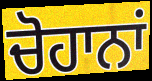
ਚੋਹਾਨਾਂ